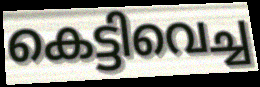
കെട്ടിവെച്ച